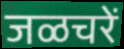
जळचरें